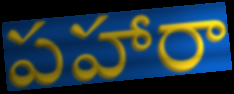
పహారా